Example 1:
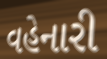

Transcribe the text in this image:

વહેનારી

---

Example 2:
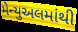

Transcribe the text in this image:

મેન્યુઅલમાંથી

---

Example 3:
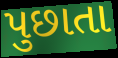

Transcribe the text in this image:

પુછાતા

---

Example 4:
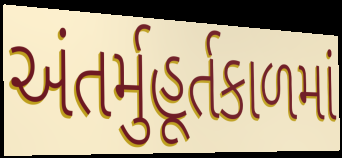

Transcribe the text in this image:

અંતર્મુહૂર્તકાળમાં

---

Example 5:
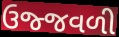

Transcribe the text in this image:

ઉજ્જવળી